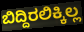
ಬಿದ್ದಿರಲಿಕ್ಕಿಲ್ಲ